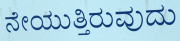
ನೇಯುತ್ತಿರುವುದು